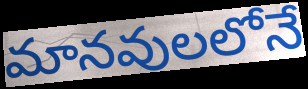
మానవులలోనే